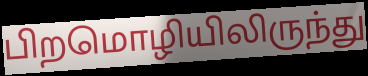
பிறமொழியிலிருந்து